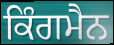
ਕਿੰਗਮੈਨ